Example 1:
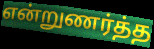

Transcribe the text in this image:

என்றுணர்த்த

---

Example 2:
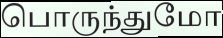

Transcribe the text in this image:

பொருந்துமோ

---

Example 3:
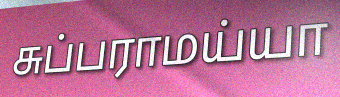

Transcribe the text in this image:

சுப்பராமய்யா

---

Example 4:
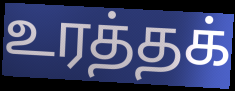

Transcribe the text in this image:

உரத்தக்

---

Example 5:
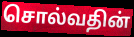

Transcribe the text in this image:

சொல்வதின்